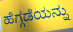
ಹೆಗ್ಗಡೆಯನ್ನು